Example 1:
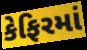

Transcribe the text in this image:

કેફિરમાં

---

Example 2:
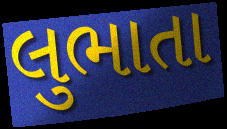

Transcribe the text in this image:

લુભાતા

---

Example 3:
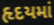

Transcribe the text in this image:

હૃદયમાં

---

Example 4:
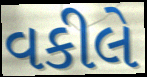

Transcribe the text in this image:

વકીલે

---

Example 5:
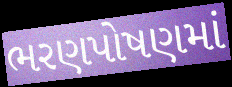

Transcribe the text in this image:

ભરણપોષણમાં